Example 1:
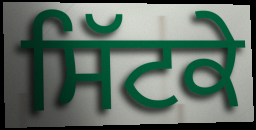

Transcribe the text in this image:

ਸਿੱਟਕੇ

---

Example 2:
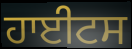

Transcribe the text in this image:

ਹਾਈਟਸ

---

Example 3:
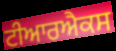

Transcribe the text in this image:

ਟੀਆਰਐਕਸ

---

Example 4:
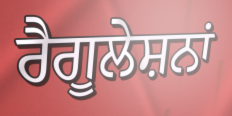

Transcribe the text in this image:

ਰੈਗੂਲੇਸ਼ਨਾਂ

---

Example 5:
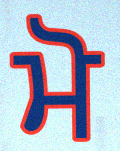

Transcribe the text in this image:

ਮੋ